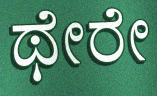
ಥೇರೇ